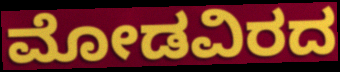
ಮೋಡವಿರದ